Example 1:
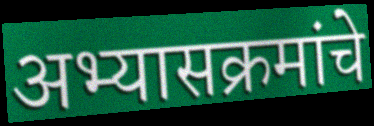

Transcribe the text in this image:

अभ्यासक्रमांचे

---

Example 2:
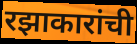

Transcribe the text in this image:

रझाकारांची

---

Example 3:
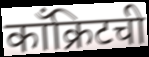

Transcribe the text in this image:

काँक्रिटची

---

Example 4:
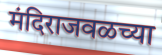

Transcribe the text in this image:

मंदिराजवळच्या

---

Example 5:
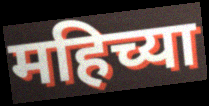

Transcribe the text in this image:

महिच्या